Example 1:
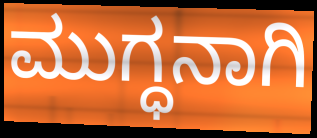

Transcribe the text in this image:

ಮುಗ್ಧನಾಗಿ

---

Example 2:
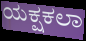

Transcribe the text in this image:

ಯಕ್ಷಕಲಾ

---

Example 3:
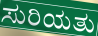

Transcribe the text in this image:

ಸುರಿಯತು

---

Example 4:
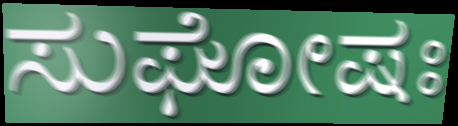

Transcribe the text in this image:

ಸುಘೋಷಃ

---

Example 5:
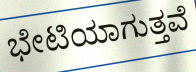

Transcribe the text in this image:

ಭೇಟಿಯಾಗುತ್ತವೆ